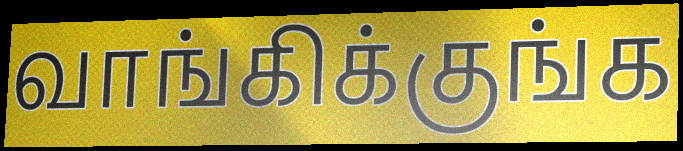
வாங்கிக்குங்க